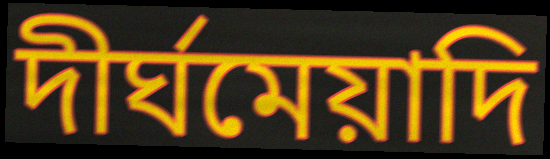
দীর্ঘমেয়াদি